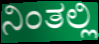
ನಿಂತಲ್ಲಿ